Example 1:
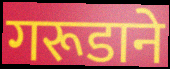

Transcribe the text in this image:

गरूडाने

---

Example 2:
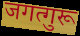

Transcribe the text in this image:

जगत्गुरू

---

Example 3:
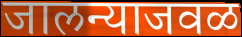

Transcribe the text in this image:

जालन्याजवळ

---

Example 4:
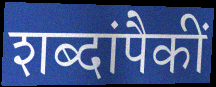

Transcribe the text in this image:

शब्दांपैकीं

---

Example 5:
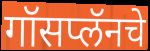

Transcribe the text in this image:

गॉसप्लॅनचे